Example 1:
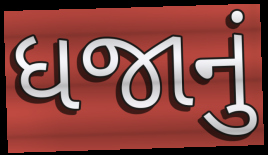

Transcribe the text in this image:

ધજાનું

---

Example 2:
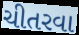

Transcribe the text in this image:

ચીતરવા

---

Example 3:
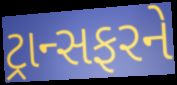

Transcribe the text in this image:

ટ્રાન્સફરને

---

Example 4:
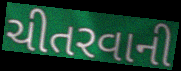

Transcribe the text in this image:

ચીતરવાની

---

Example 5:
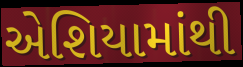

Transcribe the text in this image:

એશિયામાંથી